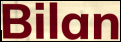
Bilan